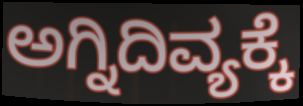
ಅಗ್ನಿದಿವ್ಯಕ್ಕೆ